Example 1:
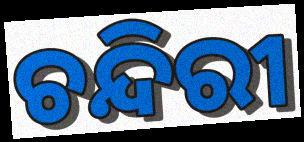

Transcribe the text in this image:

ଚନ୍ଦିରୀ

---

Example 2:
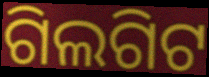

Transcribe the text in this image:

ଗିଲଗିଟ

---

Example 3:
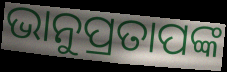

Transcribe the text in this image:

ଭାନୁପ୍ରତାପଙ୍କ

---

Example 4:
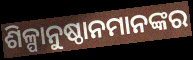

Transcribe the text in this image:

ଶିଳ୍ପାନୁଷ୍ଠାନମାନଙ୍କର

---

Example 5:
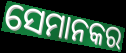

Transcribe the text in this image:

ସେମାନକର